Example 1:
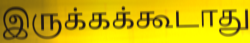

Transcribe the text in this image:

இருக்கக்கூடாது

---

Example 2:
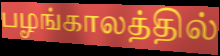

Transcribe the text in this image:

பழங்காலத்தில்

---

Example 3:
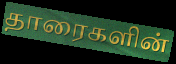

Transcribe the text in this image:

தாரைகளின்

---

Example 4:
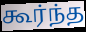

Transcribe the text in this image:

கூர்ந்த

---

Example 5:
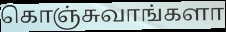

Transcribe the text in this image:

கொஞ்சுவாங்களா